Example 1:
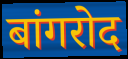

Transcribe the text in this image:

बांगरोद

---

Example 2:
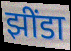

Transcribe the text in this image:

झींडा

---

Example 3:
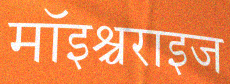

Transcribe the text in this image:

मॉइश्चराइज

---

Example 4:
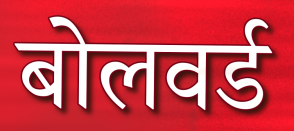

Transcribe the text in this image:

बोलवर्ड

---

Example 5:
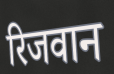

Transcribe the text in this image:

रिजवान